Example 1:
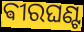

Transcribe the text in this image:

ଵୀରଘଣ୍ଟ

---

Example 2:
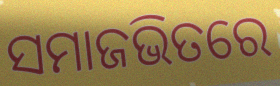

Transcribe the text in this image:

ସମାଜଭିତରେ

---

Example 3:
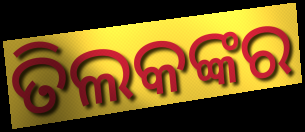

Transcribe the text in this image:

ତିଲକଙ୍କର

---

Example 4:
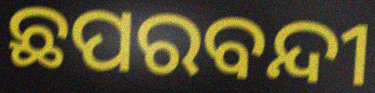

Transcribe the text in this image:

ଛପରବନ୍ଦୀ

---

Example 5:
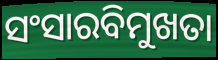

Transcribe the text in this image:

ସଂସାରବିମୁଖତା